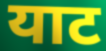
याट